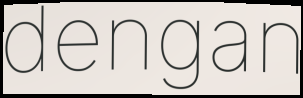
dengan